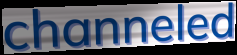
channeled